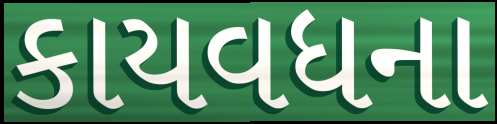
કાયવધના